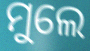
ମୁଲେ